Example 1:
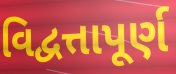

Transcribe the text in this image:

વિદ્વત્તાપૂર્ણ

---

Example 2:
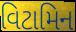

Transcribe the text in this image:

વિટામિન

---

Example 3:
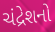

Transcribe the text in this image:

ચંદ્રેશનો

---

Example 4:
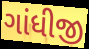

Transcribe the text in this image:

ગાંધીજી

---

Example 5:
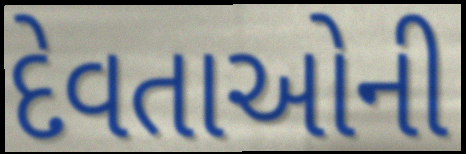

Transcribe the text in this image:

દેવતાઓની